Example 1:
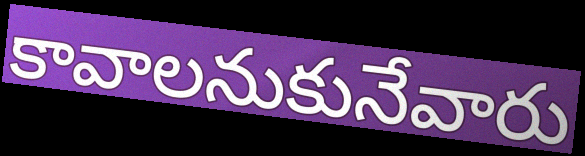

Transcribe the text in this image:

కావాలనుకునేవారు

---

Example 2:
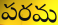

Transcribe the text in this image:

పరమ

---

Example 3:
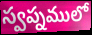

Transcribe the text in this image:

స్వప్నములో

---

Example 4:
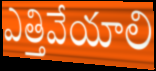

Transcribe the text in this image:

ఎత్తివేయాలి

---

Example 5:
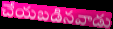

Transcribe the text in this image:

చేయబడినవాడు